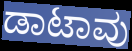
ಡಾಟಾವು